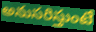
అనుసరిస్తుంటే